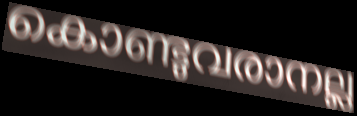
കൊണ്ടുവരാനല്ല